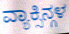
ವ್ಯಾಕ್ಸಿನ್ಗಳ